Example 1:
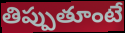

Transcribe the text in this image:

తిప్పుతూంటే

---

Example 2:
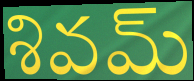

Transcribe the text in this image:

శివమ్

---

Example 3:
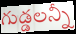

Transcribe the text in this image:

గుడ్డలన్నీ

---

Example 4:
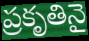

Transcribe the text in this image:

ప్రకృతినై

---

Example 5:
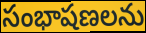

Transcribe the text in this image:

సంభాషణలను